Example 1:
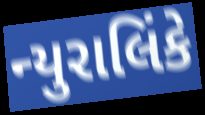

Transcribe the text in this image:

ન્યુરાલિંકે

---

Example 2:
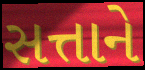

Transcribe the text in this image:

સત્તાને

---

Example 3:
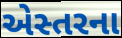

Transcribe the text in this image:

એસ્તરના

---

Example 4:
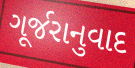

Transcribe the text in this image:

ગૂર્જરાનુવાદ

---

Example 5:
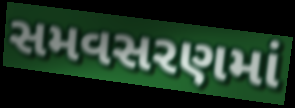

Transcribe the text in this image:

સમવસરણમાં